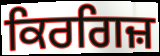
ਕਿਰਗਿਜ਼